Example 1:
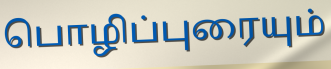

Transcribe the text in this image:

பொழிப்புரையும்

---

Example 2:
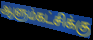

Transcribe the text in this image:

ஆளும்கட்சிக்கு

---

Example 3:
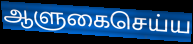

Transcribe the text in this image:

ஆளுகைசெய்ய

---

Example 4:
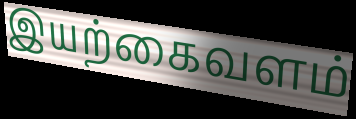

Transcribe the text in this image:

இயற்கைவளம்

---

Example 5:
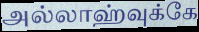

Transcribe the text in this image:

அல்லாஹ்வுக்கே